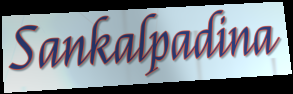
Sankalpadina